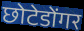
छोटेडोंगर